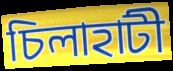
চিলাহাটী